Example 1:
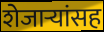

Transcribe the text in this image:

शेजाऱ्यांसह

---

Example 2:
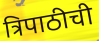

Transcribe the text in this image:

त्रिपाठीची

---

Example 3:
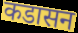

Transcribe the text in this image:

कडासन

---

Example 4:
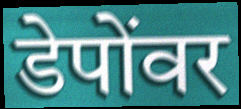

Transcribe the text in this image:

डेपोंवर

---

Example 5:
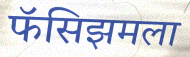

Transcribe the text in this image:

फॅसिझमला